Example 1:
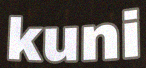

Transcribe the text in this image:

kuni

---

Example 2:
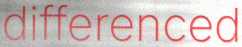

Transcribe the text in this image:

differenced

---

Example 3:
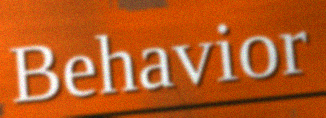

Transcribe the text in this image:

Behavior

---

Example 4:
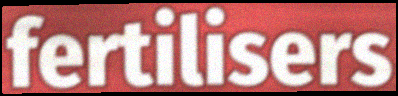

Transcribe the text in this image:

fertilisers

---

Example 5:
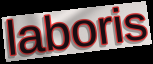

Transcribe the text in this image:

laboris